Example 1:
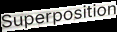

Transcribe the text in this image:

Superposition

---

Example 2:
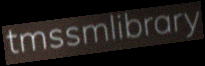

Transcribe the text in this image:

tmssmlibrary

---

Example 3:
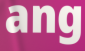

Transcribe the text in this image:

ang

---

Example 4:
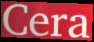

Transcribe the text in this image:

Cera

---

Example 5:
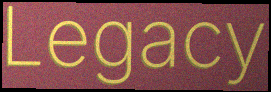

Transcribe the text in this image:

Legacy